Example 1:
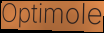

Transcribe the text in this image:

Optimole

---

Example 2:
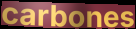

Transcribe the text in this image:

carbones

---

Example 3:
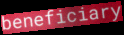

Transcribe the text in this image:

beneficiary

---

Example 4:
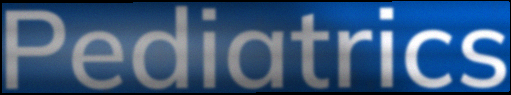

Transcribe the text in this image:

Pediatrics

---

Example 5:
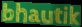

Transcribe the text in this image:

bhautik